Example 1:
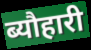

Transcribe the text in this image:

ब्यौहारी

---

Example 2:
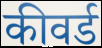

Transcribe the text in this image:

कीवर्ड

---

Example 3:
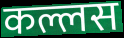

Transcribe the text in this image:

कल्लस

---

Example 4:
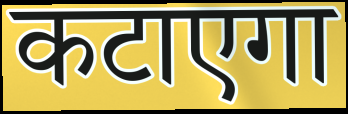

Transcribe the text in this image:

कटाएगा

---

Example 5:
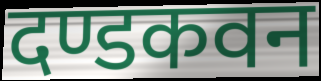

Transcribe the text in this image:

दण्डकवन